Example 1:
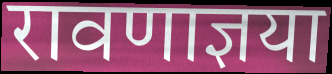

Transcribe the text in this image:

रावणाज्ञया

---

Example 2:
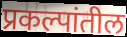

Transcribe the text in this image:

प्रकल्पांतील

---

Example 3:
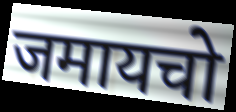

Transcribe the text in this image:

जमायचो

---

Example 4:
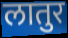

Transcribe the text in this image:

लातुर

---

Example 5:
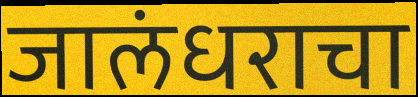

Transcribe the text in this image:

जालंधराचा